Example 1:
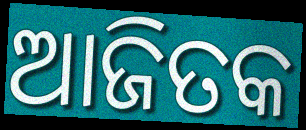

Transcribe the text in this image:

ଆଜିତକ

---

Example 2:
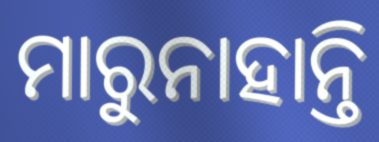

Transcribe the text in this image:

ମାରୁନାହାନ୍ତି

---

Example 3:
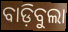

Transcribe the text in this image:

ବାଡ଼ିବୁଲା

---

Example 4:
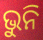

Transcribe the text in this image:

ଭୁନି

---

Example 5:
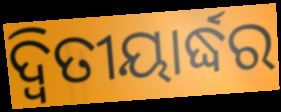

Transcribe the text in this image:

ଦ୍ୱିତୀୟାର୍ଦ୍ଧର